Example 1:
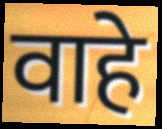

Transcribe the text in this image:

वाहे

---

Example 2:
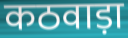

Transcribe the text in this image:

कठवाड़ा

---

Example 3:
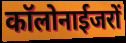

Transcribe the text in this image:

कॉलोनाईजरों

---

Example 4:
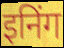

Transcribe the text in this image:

इनिंग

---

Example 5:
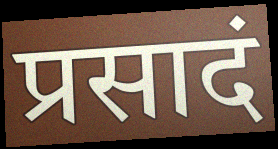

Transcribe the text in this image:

प्रसादं